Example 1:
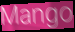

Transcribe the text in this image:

Mango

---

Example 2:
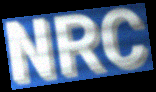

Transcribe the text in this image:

NRC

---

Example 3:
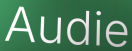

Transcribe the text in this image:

Audie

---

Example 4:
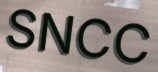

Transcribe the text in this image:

SNCC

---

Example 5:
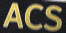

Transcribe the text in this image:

ACS